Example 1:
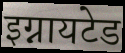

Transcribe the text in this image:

इग्नायटेड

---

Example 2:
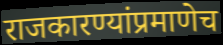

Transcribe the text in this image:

राजकारण्यांप्रमाणेच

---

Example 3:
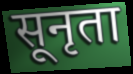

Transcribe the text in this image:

सूनृता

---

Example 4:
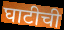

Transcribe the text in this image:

घाटीची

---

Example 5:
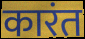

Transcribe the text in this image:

कारंत